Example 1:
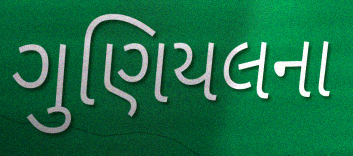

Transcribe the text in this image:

ગુણિયલના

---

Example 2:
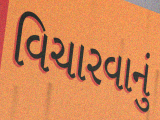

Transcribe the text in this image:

વિચારવાનું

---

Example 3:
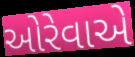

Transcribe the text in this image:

ઓરેવાએ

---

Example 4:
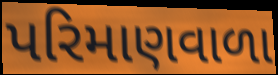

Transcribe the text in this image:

પરિમાણવાળા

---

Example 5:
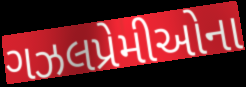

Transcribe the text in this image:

ગઝલપ્રેમીઓના